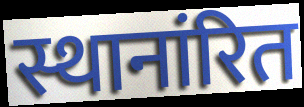
स्थानांरित